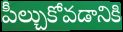
పీల్చుకోవడానికి